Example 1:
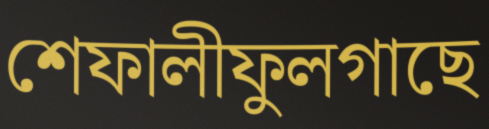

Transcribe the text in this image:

শেফালীফুলগাছে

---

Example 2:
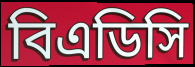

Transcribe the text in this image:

বিএডিসি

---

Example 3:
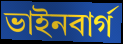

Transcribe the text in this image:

ভাইনবার্গ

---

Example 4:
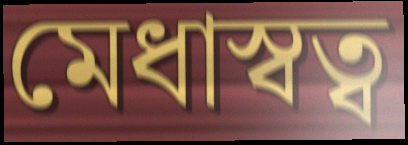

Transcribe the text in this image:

মেধাস্বত্ব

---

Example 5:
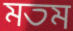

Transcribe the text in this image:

মতম